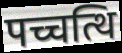
पच्चत्थि